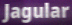
Jagular